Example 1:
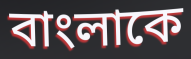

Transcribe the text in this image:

বাংলাকে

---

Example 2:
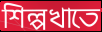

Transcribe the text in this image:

শিল্পখাতে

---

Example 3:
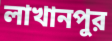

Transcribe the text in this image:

লাখানপুর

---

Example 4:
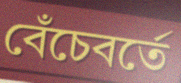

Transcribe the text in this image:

বেঁচেবর্তে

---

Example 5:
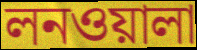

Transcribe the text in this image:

লনওয়ালা